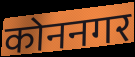
कोननगर